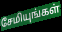
சேமியுங்கள்